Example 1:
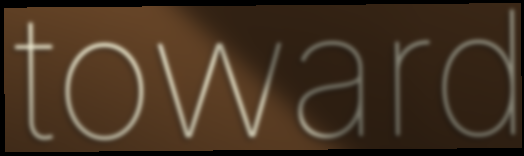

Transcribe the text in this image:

toward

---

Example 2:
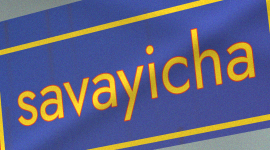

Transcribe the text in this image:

savayicha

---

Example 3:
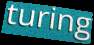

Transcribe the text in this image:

turing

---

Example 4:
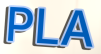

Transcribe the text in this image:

PLA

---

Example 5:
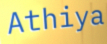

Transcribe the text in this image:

Athiya